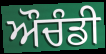
ਔਚੰਡੀ